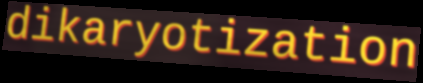
dikaryotization